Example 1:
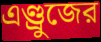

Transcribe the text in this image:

এণ্ড্রুজের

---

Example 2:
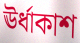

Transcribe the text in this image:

ঊর্ধাকাশ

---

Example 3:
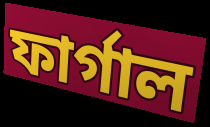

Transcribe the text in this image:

ফার্গাল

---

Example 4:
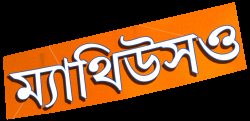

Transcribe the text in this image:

ম্যাথিউসও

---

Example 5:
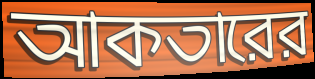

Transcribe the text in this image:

আকতারের